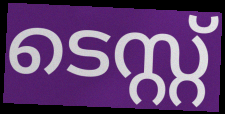
ടെസ്റ്റ്